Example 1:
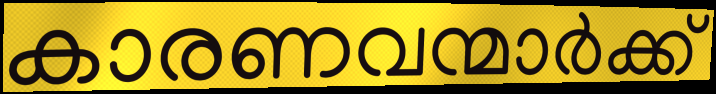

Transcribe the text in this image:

കാരണവന്മാർക്ക്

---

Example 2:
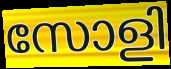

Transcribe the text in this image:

സോളി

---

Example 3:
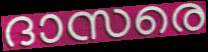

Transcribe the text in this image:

ദാസരെ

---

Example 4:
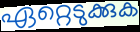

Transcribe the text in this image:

ഏറ്റെടുക്കുക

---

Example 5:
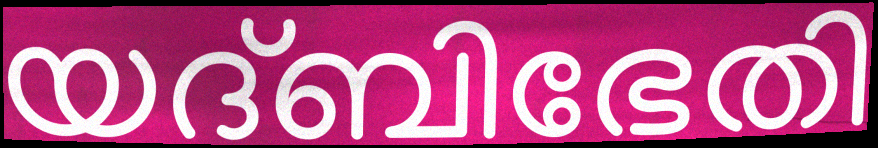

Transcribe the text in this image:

യദ്ബിഭേതി